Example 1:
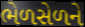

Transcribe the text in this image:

ભેળસેળને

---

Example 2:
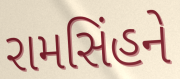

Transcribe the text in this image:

રામસિંહને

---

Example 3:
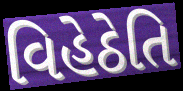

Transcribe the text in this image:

વિહેઠેતિ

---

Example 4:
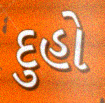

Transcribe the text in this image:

દુહો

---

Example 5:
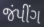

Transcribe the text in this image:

જંપીંગ